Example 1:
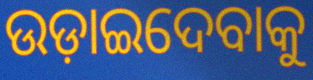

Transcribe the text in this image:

ଉଡ଼ାଇଦେବାକୁ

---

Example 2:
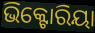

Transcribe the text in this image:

ଭିକ୍ଟୋରିୟା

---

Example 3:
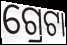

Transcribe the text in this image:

ଗ୍ରେଟା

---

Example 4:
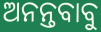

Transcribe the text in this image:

ଅନନ୍ତବାବୁ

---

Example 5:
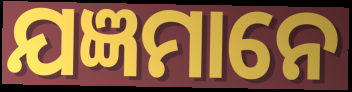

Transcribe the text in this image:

ଯଜ୍ଞମାନେ